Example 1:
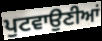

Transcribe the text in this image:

ਪੁਟਵਾਉਣੀਆਂ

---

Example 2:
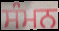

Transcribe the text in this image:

ਸੰਮਨ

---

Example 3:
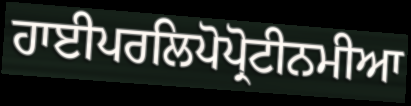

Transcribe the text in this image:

ਹਾਈਪਰਲਿਪੋਪ੍ਰੋਟੀਨਮੀਆ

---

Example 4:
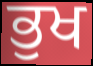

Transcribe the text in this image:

ਭੁਖ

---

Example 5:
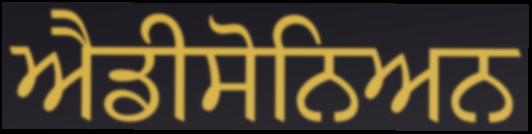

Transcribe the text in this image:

ਐਡੀਸੋਨਿਅਨ